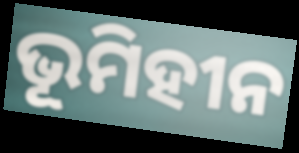
ଭୂମିହୀନ